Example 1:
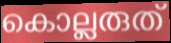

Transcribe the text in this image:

കൊല്ലരുത്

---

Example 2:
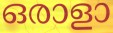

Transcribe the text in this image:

ഒരാളാ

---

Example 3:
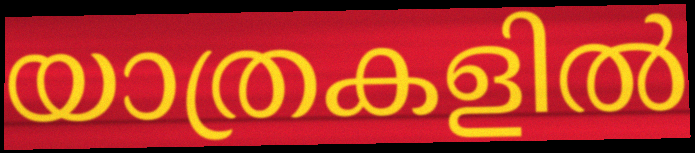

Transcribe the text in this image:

യാത്രകളിൽ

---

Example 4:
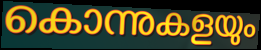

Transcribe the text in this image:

കൊന്നുകളയും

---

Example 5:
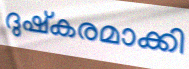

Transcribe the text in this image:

ദുഷ്കരമാക്കി